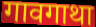
गावगाथा